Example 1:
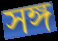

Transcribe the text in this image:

সঙ্গ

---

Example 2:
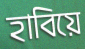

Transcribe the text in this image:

হাবিয়ে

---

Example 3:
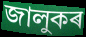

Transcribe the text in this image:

জালুকৰ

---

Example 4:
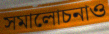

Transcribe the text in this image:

সমালোচনাও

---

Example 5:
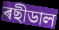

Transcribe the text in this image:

ৰছীডাল